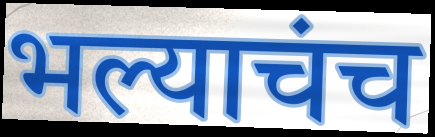
भल्याचंच